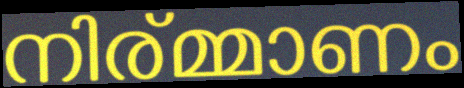
നിര്മ്മാണം